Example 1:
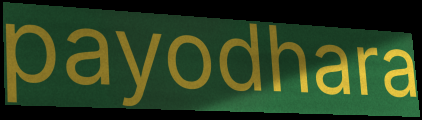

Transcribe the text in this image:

payodhara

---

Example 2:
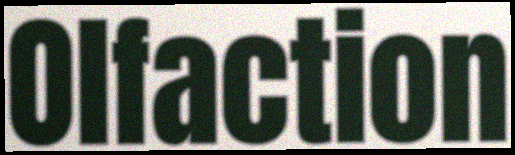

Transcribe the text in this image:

Olfaction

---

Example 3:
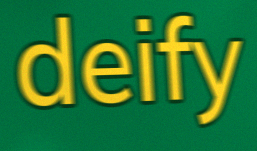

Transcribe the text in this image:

deify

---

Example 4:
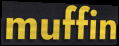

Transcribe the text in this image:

muffin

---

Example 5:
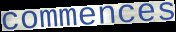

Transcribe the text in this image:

commences